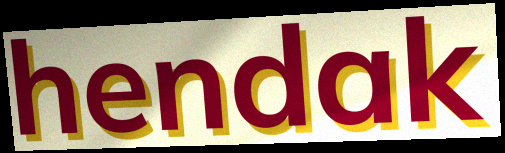
hendak